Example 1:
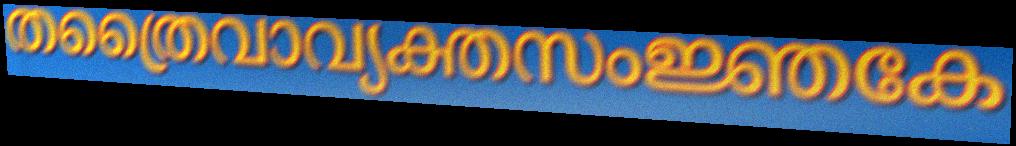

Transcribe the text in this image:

തത്രൈവാവ്യക്തസംജ്ഞകേ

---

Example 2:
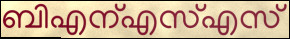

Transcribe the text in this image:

ബിഎന്എസ്എസ്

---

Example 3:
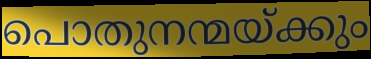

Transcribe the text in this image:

പൊതുനന്മയ്ക്കും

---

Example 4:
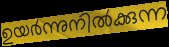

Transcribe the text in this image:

ഉയർന്നുനിൽക്കുന്ന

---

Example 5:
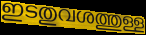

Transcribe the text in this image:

ഇടതുവശത്തുള്ള